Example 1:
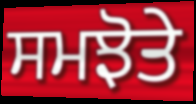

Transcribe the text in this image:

ਸਮਝੋਤੇ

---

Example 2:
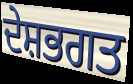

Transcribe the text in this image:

ਦੇਸ਼ਭਗਤ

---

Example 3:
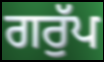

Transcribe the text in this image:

ਗਰੁੱਪ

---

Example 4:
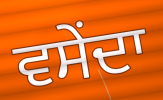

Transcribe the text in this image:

ਵਸੇਂਦਾ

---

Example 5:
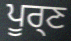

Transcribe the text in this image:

ਪੂਰ੍ਣ